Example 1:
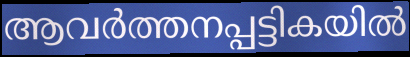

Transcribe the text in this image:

ആവർത്തനപ്പട്ടികയിൽ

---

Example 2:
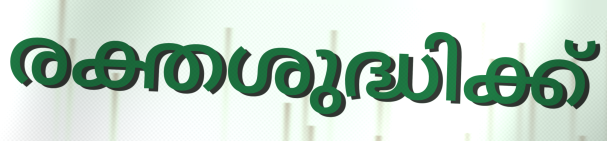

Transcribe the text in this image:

രക്തശുദ്ധിക്ക്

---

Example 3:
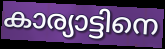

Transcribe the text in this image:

കാര്യാട്ടിനെ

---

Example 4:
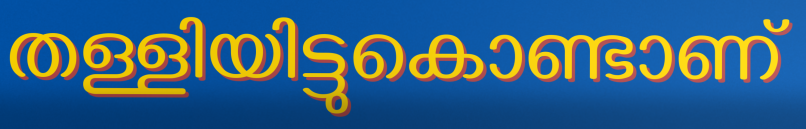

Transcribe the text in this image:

തള്ളിയിട്ടുകൊണ്ടാണ്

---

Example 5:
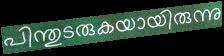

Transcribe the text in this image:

പിന്തുടരുകയായിരുന്നു